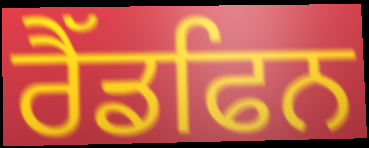
ਰੈੱਡਫਿਨ